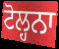
ਟੋਲ੍ਹਨਾ